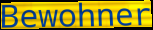
Bewohner